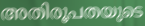
അതിരൂപതയുടെ